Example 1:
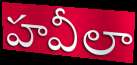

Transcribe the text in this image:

హవీలా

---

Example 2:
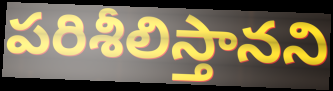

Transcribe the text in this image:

పరిశీలిస్తానని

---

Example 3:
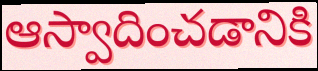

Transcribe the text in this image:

ఆస్వాదించడానికి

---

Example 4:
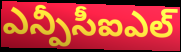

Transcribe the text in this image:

ఎన్పీసీఐఎల్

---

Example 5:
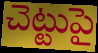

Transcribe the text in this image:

చెట్టుపై